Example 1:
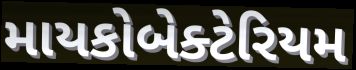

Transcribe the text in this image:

માયકોબેક્ટેરિયમ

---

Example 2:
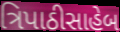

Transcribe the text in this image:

ત્રિપાઠીસાહેબ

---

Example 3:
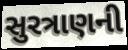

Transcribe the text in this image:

સુરત્રાણની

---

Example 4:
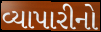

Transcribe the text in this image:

વ્યાપારીનો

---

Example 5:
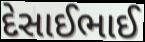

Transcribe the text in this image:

દેસાઈભાઈ